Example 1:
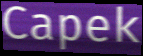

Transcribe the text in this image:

Capek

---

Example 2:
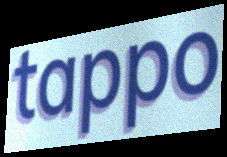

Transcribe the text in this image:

tappo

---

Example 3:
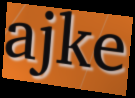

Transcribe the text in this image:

ajke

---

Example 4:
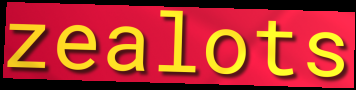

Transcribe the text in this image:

zealots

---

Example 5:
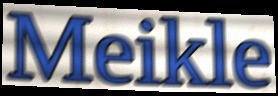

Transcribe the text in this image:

Meikle